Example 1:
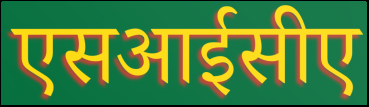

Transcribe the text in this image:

एसआईसीए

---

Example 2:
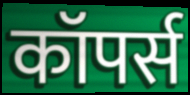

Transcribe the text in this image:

कॉपर्स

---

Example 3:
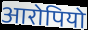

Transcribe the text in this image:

आरोपियो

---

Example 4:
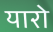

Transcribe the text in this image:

यारो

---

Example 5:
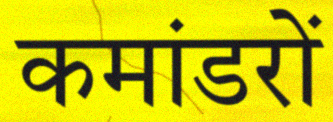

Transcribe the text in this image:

कमांडरों